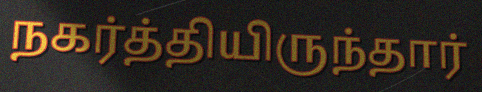
நகர்த்தியிருந்தார்